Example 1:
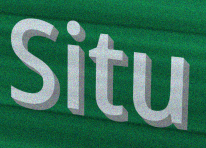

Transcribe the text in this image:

Situ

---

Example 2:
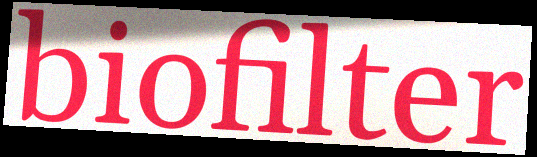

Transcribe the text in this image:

biofilter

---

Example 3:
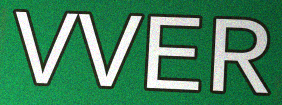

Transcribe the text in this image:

VVER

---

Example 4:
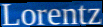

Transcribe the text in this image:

Lorentz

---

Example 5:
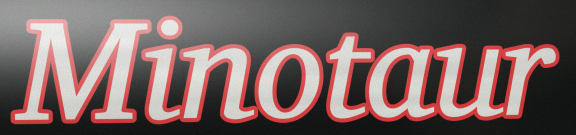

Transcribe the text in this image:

Minotaur